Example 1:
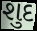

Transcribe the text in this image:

શુદ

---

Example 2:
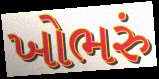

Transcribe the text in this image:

ખોભરું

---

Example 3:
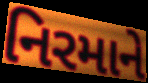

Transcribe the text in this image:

નિરમાને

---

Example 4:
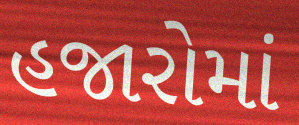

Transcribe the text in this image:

હજારોમાં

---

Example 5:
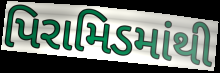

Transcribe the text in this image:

પિરામિડમાંથી